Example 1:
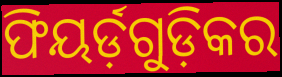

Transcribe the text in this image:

ଫିୟର୍ଡ଼ଗୁଡ଼ିକର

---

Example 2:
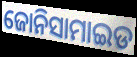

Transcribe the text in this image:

ଜୋନିସାମାଇଡ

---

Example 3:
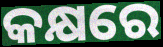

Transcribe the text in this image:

କକ୍ଷରେ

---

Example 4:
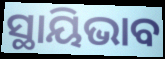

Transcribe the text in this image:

ସ୍ଥାୟିଭାବ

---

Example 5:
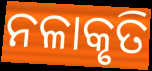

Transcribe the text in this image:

ନଳାକୃତି